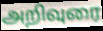
அறிவுரை